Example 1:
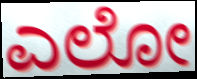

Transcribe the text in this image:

ಎಲೋ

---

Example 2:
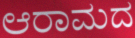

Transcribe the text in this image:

ಆರಾಮದ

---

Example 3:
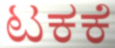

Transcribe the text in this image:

ಟಕಕೆ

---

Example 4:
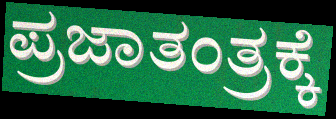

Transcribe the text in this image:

ಪ್ರಜಾತಂತ್ರಕ್ಕೆ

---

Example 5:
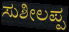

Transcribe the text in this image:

ಸುಶೀಲಪ್ಪ